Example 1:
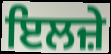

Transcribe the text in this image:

ਇਲਜ਼ੇ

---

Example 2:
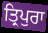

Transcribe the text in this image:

ਤ੍ਰਿਪੁਰਾ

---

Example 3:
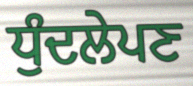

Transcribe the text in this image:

ਧੁੰਦਲੇਪਣ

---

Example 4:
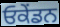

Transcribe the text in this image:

ਓਕੇਂਡਨ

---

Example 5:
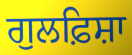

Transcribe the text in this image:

ਗੁਲਫ਼ਿਸ਼ਾ